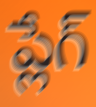
ప్లేగ్